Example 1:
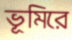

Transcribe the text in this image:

ভূমিরে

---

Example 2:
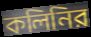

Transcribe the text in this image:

কলিনির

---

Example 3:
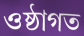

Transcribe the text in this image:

ওষ্ঠাগত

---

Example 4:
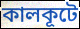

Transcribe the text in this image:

কালকূটে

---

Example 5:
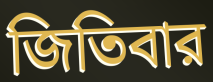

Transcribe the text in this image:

জিতিবার